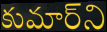
కుమార్‌ని